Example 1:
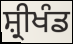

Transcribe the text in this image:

ਸ਼੍ਰੀਖੰਡ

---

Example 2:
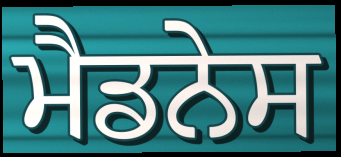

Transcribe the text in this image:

ਮੈਡਨੇਸ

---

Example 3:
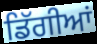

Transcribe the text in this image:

ਡਿੱਗੀਆਂ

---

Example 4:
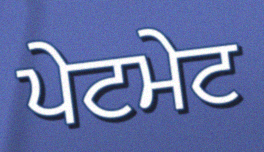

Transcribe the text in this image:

ਪੇਟਮੇਟ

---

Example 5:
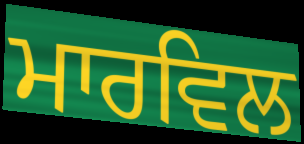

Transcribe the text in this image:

ਮਾਰਵਿਲ